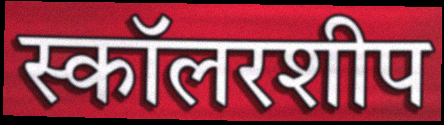
स्कॉलरशीप